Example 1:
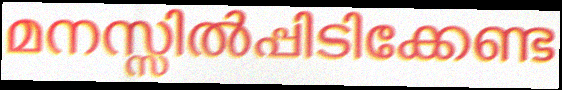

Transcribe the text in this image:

മനസ്സിൽപ്പിടിക്കേണ്ട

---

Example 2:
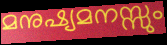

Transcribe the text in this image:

മനുഷ്യമനസ്സും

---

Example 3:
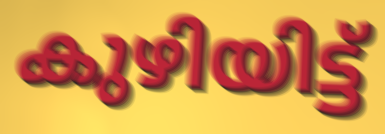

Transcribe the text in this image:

കുഴിയിട്ട്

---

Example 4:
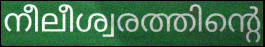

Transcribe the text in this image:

നീലീശ്വരത്തിന്റെ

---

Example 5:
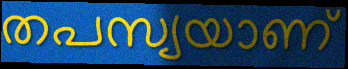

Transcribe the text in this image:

തപസ്യയാണ്